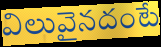
విలువైనదంటే